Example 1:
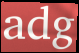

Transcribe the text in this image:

adg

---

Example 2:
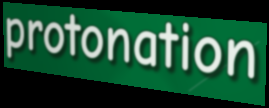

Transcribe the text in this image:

protonation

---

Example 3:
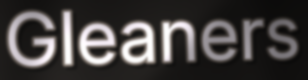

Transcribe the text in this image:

Gleaners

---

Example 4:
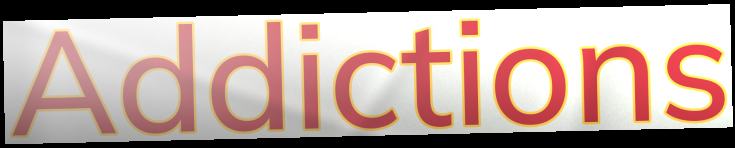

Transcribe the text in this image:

Addictions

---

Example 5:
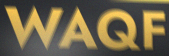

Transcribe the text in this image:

WAQF